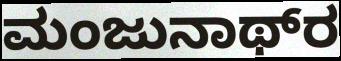
ಮಂಜುನಾಥ್‌ರ